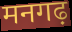
मनगढ़